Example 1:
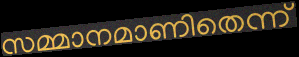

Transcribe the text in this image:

സമ്മാനമാണിതെന്ന്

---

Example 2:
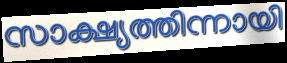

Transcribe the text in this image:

സാക്ഷ്യത്തിന്നായി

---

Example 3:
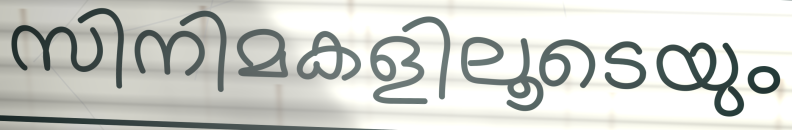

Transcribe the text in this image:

സിനിമകളിലൂടെയും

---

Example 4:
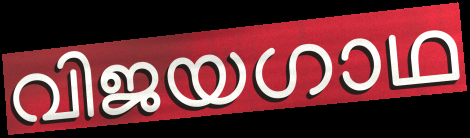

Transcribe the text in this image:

വിജയഗാഥ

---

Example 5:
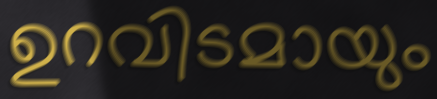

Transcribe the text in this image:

ഉറവിടമായും